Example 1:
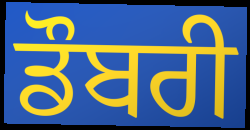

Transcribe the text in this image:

ਡੌਬਰੀ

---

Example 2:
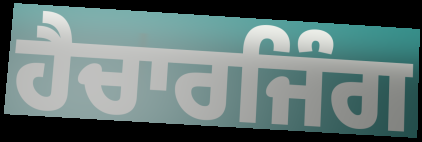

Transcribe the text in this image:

ਹੈਚਾਰਜਿੰਗ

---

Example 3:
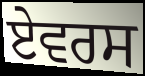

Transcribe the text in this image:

ਏਵਰਸ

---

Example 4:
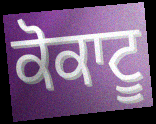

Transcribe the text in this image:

ਕੋਕਾਟੂ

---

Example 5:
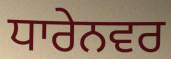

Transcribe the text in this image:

ਧਾਰੇਨਵਰ